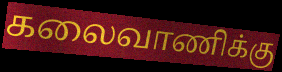
கலைவாணிக்கு